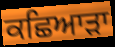
ਕਛਿਆੜਾ